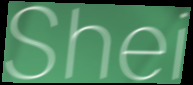
Shei